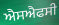
ਐਸਐਫਸੀ